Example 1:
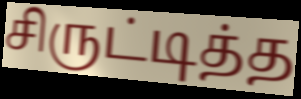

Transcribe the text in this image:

சிருட்டித்த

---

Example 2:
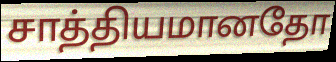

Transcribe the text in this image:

சாத்தியமானதோ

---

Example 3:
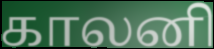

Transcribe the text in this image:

காலனி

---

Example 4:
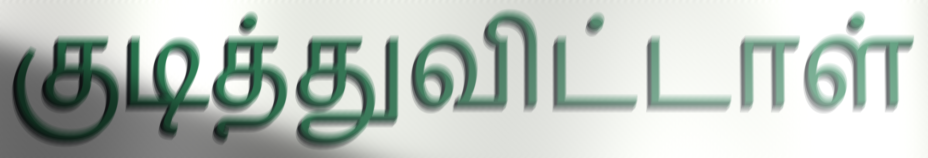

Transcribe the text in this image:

குடித்துவிட்டாள்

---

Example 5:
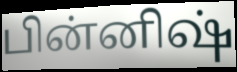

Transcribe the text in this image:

பின்னிஷ்